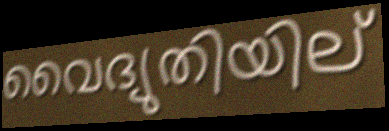
വൈദ്യുതിയില്